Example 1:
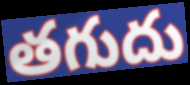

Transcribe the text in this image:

తగుదు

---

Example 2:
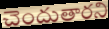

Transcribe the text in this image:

చెందుతారని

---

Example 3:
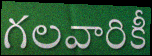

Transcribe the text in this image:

గలవారికీ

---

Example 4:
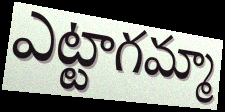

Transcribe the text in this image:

ఎట్టాగమ్మా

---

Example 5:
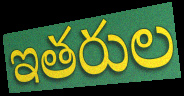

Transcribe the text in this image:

ఇతరుల